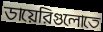
ডায়েরিগুলোতে